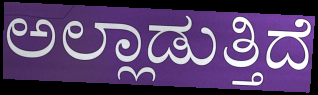
ಅಲ್ಲಾಡುತ್ತಿದೆ